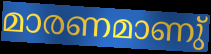
മാരണമാണു്